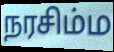
நரசிம்ம